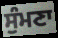
ਸੁੰਮਣਾ